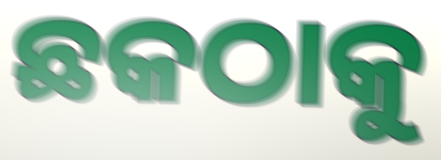
ଛକଠାକୁ